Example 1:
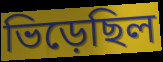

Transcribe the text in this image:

ভিড়েছিল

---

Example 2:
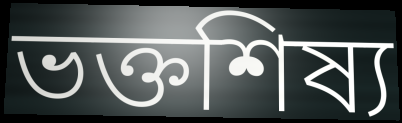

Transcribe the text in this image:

ভক্তশিষ্য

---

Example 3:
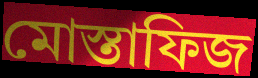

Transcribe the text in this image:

মোস্তাফিজ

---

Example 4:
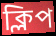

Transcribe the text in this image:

ক্লিপ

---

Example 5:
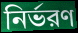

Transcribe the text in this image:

নির্ভরণ